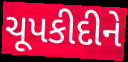
ચૂપકીદીને